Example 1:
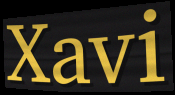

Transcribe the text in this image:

Xavi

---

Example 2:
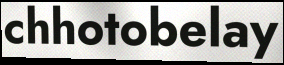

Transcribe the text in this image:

chhotobelay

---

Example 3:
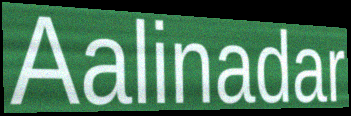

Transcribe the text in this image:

Aalinadar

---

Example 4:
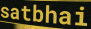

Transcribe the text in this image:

satbhai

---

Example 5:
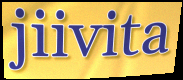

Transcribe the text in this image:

jiivita